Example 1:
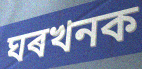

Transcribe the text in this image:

ঘৰখনক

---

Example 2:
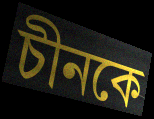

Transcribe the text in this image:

চীনকে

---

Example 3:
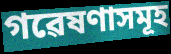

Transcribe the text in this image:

গৱেষণাসমূহ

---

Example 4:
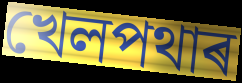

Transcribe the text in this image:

খেলপথাৰ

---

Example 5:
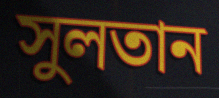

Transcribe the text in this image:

সুলতান